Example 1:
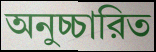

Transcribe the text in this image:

অনুচ্চারিত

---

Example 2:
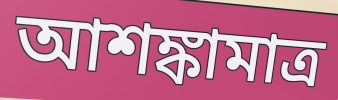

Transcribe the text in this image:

আশঙ্কামাত্র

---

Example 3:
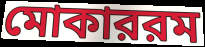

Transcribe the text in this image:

মোকাররম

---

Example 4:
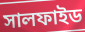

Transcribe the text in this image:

সালফাইড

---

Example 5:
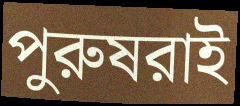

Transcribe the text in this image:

পুরুষরাই